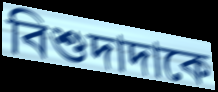
বিশুদাদাকে